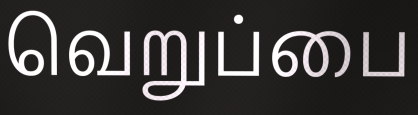
வெறுப்பை